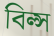
বিল্স